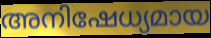
അനിഷേധ്യമായ